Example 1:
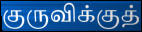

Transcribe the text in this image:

குருவிக்குத்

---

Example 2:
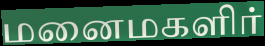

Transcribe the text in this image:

மனைமகளிர்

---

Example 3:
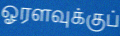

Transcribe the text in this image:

ஓரளவுக்குப்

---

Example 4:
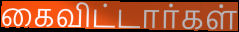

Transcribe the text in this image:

கைவிட்டார்கள்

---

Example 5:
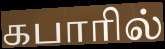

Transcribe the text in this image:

கபாரில்